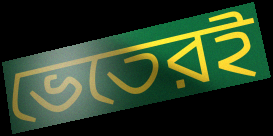
ভেতেরই